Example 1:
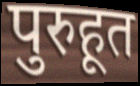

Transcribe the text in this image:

पुरुहूत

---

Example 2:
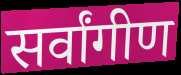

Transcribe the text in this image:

सर्वांगीण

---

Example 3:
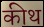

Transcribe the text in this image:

कीथ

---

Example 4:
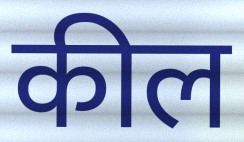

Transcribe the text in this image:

कील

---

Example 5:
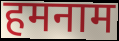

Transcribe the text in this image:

हमनाम